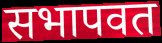
सभापवत